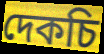
দেকচি